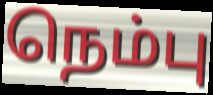
நெம்பு